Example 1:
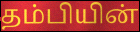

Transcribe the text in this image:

தம்பியின்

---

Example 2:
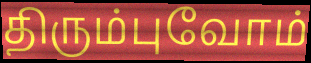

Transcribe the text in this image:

திரும்புவோம்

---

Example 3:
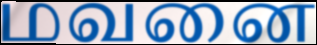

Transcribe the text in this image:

மவனை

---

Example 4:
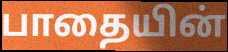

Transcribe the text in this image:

பாதையின்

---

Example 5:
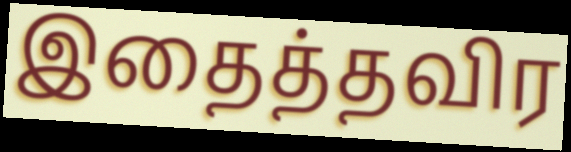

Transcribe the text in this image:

இதைத்தவிர